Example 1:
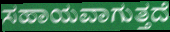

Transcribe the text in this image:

ಸಹಾಯವಾಗುತ್ತದೆ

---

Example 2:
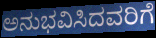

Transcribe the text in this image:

ಅನುಭವಿಸಿದವರಿಗೆ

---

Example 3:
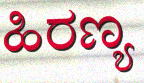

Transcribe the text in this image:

ಹಿರಣ್ಯ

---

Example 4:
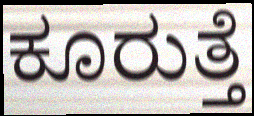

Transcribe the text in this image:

ಕೂರುತ್ತೆ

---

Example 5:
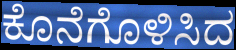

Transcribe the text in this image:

ಕೊನೆಗೊಳಿಸಿದ